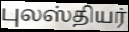
புலஸ்தியர்